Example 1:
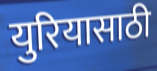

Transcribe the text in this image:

युरियासाठी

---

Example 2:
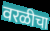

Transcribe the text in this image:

वरळीचा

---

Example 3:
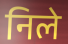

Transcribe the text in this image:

निले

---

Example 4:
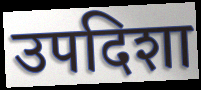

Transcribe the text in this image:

उपदिशा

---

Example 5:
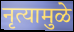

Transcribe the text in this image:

नृत्यामुळे